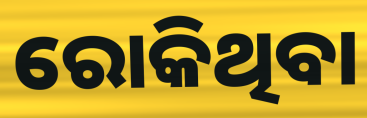
ରୋକିଥିବା